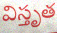
విస్తృత